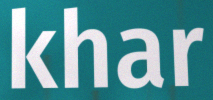
khar